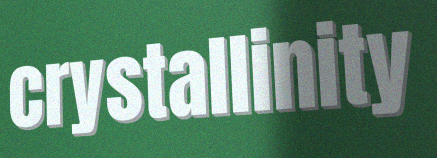
crystallinity